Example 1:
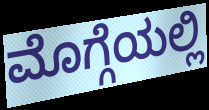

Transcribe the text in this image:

ಮೊಗ್ಗೆಯಲ್ಲಿ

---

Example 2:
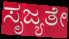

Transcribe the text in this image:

ಸೃಜ್ಯತೇ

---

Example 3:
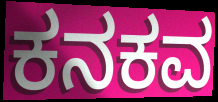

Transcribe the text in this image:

ಕನಕವ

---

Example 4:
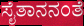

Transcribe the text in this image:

ಸೈತಾನನಂತೆ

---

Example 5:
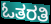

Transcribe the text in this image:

ಓತರತಿ